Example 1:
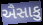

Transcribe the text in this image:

ઐસાકુ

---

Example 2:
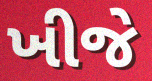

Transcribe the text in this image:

ખીજે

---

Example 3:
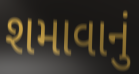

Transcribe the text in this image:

શમાવાનું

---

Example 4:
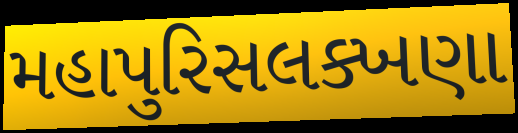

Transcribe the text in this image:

મહાપુરિસલક્ખણા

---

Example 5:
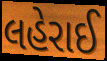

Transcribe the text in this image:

લહેરાઈ